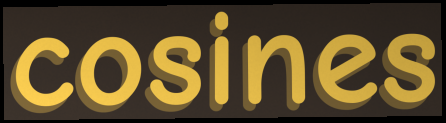
cosines